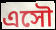
এসৌ